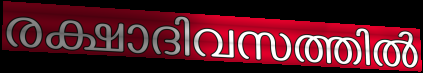
രക്ഷാദിവസത്തിൽ